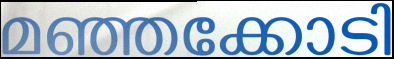
മഞ്ഞക്കോടി